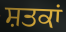
ਸ਼ਤਕਾਂ